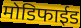
मोडिफाईड